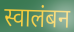
स्वालंबन